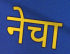
नेचा